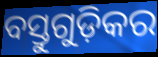
ବସ୍ତୁଗୁଡ଼ିକର